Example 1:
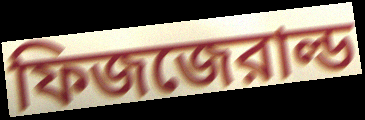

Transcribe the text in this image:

ফিজজেরাল্ড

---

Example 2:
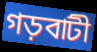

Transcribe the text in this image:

গড়বাটী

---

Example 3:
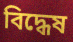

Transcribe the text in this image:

বিদ্ধেষ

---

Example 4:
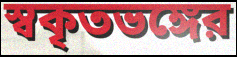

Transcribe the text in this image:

স্বকৃতভঙ্গের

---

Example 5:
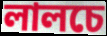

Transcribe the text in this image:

লালচে